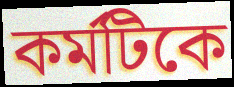
কর্মটিকে